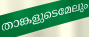
താങ്കളുടെമേലും